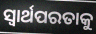
ସ୍ଵାର୍ଥପରତାକୁ